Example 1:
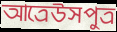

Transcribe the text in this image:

আত্রেউসপুত্র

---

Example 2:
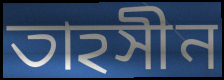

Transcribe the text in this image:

তাহসীন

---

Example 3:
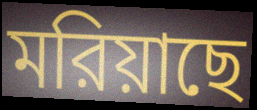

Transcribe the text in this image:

মরিয়াছে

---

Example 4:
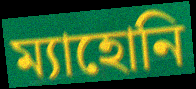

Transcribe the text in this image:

ম্যাহোনি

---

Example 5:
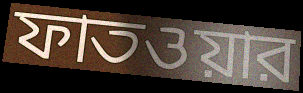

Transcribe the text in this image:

ফাতওয়ার